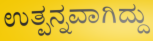
ಉತ್ಪನ್ನವಾಗಿದ್ದು